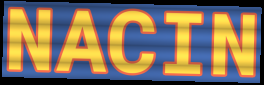
NACIN